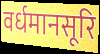
वर्धमानसूरि